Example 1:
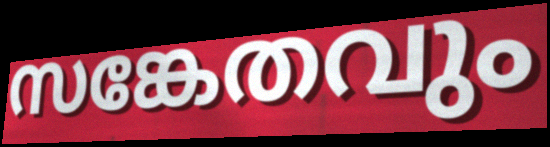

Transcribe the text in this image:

സങ്കേതവും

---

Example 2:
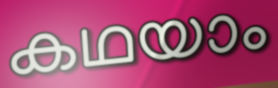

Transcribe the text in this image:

കഥയാം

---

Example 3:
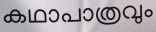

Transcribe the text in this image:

കഥാപാത്രവും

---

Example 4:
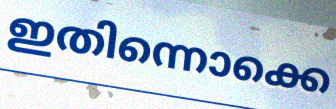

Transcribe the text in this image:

ഇതിന്നൊക്കെ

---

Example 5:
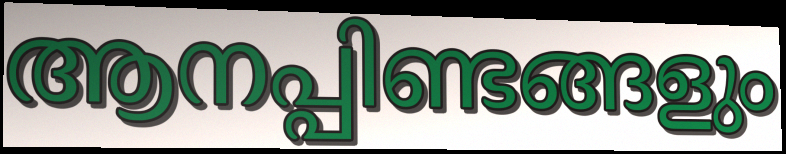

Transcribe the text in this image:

ആനപ്പിണ്ടങ്ങളും